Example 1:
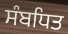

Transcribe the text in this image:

ਸੰਬਧਿਤ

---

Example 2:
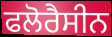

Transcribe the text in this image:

ਫਲੋਰੈਸੀਨ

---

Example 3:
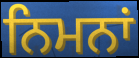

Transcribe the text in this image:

ਨਿਮਨਾਂ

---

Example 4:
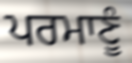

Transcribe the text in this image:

ਪਰਮਾਣੂੰ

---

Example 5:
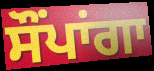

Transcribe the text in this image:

ਸੌਂਪਾਂਗਾ